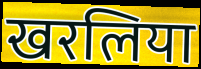
खरलिया